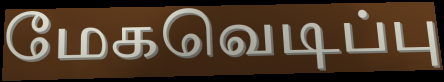
மேகவெடிப்பு